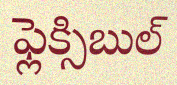
ఫ్లెక్సిబుల్